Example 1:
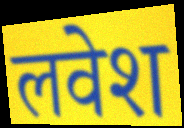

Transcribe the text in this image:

लवेश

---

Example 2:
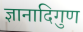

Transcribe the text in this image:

ज्ञानादिगुण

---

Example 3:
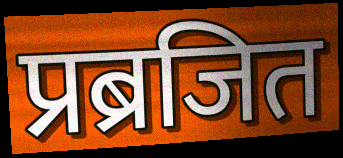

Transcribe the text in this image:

प्रब्रजित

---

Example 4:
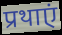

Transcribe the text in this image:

प्रथाएं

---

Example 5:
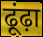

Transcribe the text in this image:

ढूंढ़ा